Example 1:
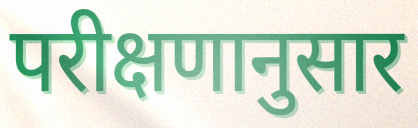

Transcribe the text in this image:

परीक्षणानुसार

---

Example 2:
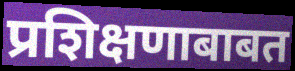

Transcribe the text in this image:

प्रशिक्षणाबाबत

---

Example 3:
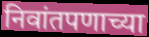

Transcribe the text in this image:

निवांतपणाच्या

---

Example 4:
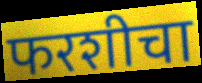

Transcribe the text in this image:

फरशीचा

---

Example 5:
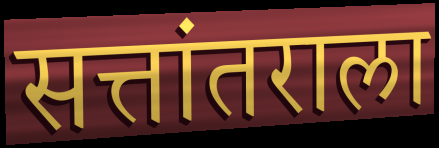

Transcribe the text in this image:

सत्तांतराला